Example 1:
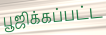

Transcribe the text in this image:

பூஜிக்கப்பட்ட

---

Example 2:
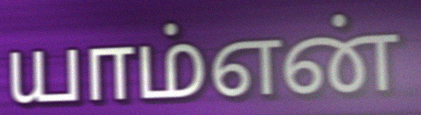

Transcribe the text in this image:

யாம்என்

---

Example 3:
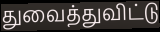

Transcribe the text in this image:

துவைத்துவிட்டு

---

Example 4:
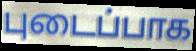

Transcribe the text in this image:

புடைப்பாக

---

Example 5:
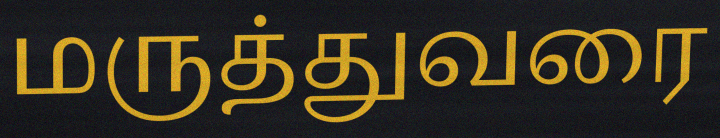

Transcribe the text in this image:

மருத்துவரை